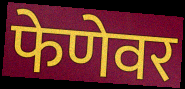
फेणेवर